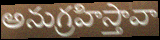
అనుగ్రహిస్తావా